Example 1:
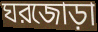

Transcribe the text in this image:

ঘরজোড়া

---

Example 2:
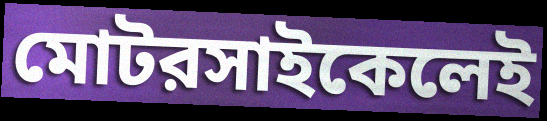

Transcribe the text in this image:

মোটরসাইকেলেই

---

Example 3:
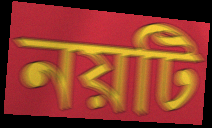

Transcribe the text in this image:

নয়টি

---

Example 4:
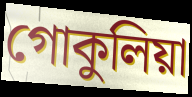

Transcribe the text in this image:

গোকুলিয়া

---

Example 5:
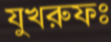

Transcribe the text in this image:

যুখরুফঃ